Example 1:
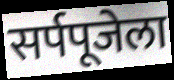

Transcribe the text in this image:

सर्पपूजेला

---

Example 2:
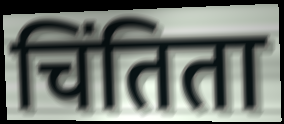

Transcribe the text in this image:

चिंतिता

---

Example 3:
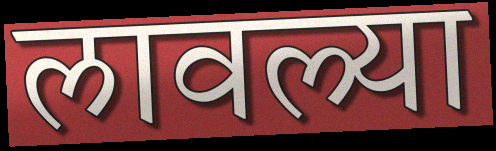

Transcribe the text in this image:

लावल्या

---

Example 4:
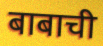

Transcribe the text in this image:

बाबाची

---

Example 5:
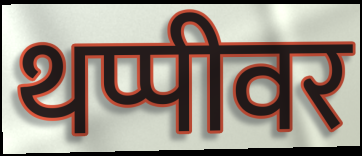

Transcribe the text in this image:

थप्पीवर